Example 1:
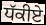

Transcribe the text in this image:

ਧੱਕੀਏ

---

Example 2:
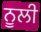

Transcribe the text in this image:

ਨੂਲੀ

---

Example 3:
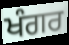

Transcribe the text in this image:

ਖੰਗਰ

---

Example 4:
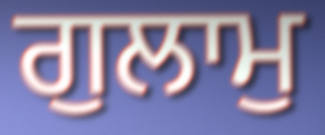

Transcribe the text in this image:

ਗੁਲਾਮੁ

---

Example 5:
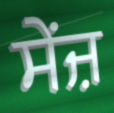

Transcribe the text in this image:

ਸੇਂਜ਼